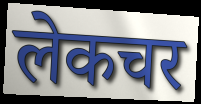
लेकचर